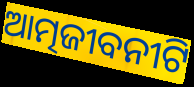
ଆତ୍ମଜୀବନୀଟି